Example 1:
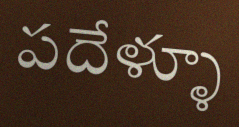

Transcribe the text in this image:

పదేళ్ళూ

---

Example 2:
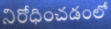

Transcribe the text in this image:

నిరోధించడంలో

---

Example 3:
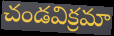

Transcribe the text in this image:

చండవిక్రమా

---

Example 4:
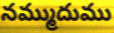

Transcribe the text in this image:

నమ్ముదుము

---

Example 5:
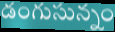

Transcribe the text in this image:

డంగుసున్నం